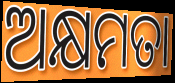
ଅକ୍ଷମତା